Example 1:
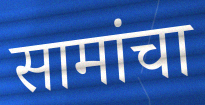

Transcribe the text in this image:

सामांचा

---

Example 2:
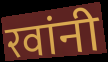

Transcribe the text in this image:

रवांनी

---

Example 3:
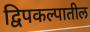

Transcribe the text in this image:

द्विपकल्पातील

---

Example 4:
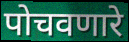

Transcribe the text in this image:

पोचवणारे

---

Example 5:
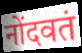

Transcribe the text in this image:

नोंदवतं